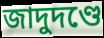
জাদুদণ্ডে